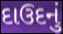
દાઉદનું